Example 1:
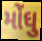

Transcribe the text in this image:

મોંઘુ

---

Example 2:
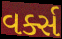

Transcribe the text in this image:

વર્ક્સ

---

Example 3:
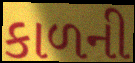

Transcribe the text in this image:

કાળની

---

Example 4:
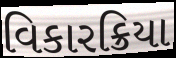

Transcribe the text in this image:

વિકારક્રિયા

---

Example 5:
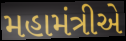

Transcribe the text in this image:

મહામંત્રીએ